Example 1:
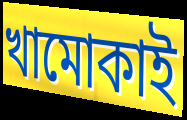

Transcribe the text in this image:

খামোকাই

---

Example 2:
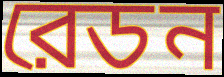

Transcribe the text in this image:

রেডন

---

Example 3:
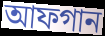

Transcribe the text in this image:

আফগান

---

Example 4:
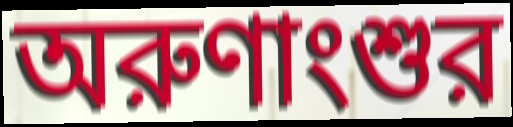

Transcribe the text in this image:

অরুণাংশুর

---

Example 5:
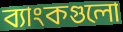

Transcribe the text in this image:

ব্যাংকগুলো